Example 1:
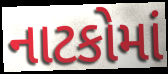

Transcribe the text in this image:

નાટકોમાં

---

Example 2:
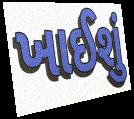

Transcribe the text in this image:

ખાઈશું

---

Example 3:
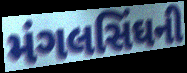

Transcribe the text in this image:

મંગલસિંઘની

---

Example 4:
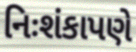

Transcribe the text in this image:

નિઃશંકાપણે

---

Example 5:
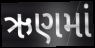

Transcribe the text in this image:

ઋણમાં